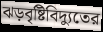
ঝড়বৃষ্টিবিদ্যুতের